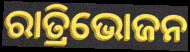
ରାତ୍ରିଭୋଜନ